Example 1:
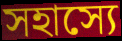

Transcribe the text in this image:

সহাস্যে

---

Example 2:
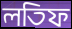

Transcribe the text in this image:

লতিফ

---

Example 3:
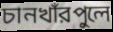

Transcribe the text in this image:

চানখাঁরপুলে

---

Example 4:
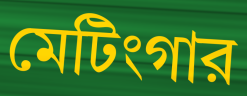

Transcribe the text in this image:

মেটিংগার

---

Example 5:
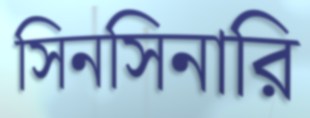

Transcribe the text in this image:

সিনসিনারি